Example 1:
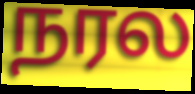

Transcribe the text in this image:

நரல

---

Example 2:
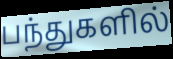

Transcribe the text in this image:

பந்துகளில்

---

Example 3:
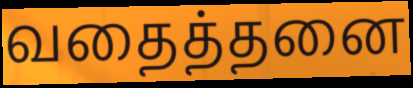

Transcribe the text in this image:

வதைத்தனை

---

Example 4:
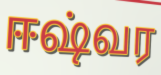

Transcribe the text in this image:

ஈஷ்வர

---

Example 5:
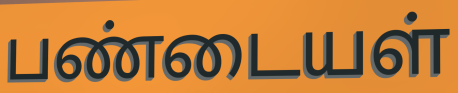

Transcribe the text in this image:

பண்டையள்